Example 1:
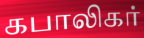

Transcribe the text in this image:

கபாலிகர்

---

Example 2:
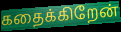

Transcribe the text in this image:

கதைக்கிறேன்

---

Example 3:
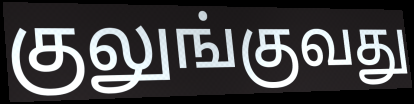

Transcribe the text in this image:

குலுங்குவது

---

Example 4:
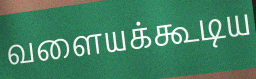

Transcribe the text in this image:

வளையக்கூடிய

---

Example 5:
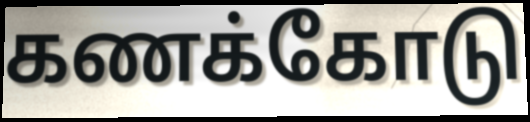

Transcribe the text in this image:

கணக்கோடு